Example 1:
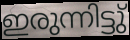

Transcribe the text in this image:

ഇരുന്നിട്ടു്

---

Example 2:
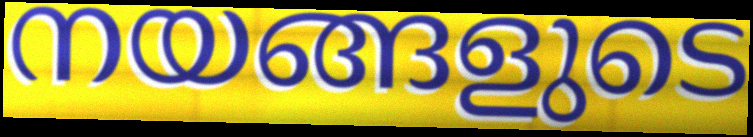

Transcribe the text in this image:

നയങ്ങളുടെ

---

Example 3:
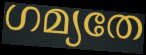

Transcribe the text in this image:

ഗമ്യതേ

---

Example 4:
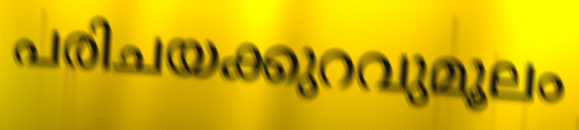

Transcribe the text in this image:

പരിചയക്കുറവുമൂലം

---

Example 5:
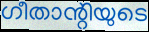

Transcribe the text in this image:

ഗീതാന്റിയുടെ